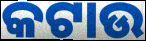
କଟାଉ